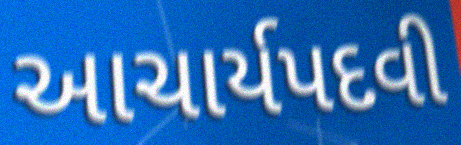
આચાર્યપદવી